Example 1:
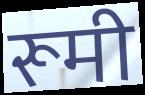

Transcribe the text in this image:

रूमी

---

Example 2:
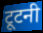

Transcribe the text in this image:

टूटनी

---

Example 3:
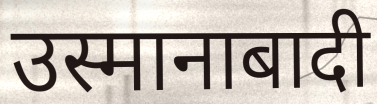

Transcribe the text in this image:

उस्मानाबादी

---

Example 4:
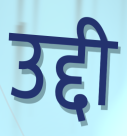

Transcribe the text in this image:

उद्दी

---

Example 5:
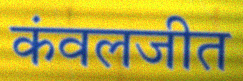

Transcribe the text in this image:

कंवलजीत